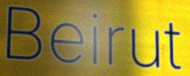
Beirut